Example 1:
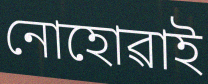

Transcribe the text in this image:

নোহোৱাই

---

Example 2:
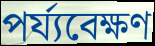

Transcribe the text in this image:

পৰ্য্যবেক্ষণ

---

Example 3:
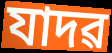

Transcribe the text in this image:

যাদৱ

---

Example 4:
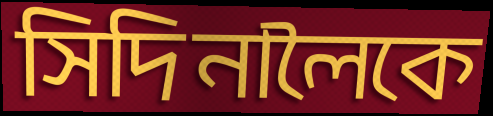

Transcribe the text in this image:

সিদিনালৈকে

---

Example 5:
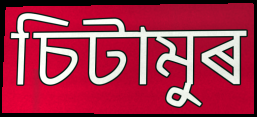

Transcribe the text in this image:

চিটামুৰ